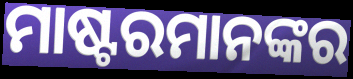
ମାଷ୍ଟରମାନଙ୍କର